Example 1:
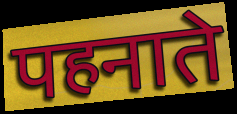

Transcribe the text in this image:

पहनाते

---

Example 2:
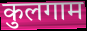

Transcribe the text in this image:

कुलगाम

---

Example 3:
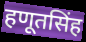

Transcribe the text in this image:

हणूतसिंह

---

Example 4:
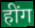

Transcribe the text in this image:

हींग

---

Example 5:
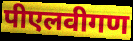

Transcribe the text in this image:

पीएलवीगण